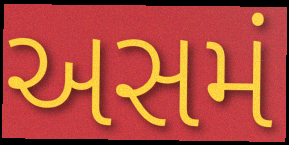
અસમં